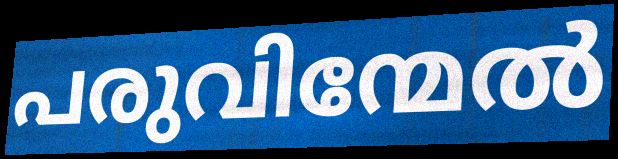
പരുവിന്മേൽ